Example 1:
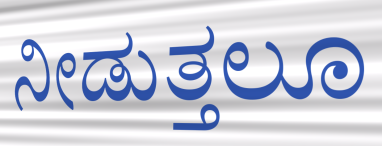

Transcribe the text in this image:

ನೀಡುತ್ತಲೂ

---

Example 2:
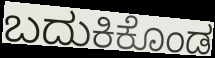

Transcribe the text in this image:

ಬದುಕಿಕೊಂಡ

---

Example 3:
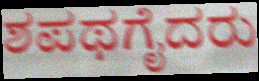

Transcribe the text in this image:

ಶಪಥಗೈದರು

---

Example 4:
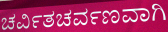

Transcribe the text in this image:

ಚರ್ವಿತಚರ್ವಣವಾಗಿ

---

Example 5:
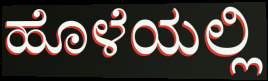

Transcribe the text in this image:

ಹೊಳೆಯಲ್ಲಿ